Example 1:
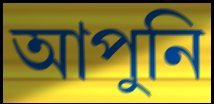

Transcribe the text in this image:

আপুনি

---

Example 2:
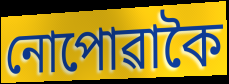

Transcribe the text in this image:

নোপোৱাকৈ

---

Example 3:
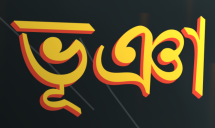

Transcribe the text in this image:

ভূঞা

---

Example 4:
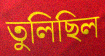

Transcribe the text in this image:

তুলিছিল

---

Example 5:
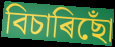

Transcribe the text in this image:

বিচাৰিছোঁ